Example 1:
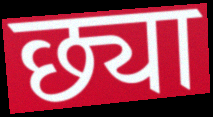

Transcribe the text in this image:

छ्या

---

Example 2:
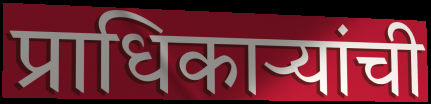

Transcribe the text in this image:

प्राधिकाऱ्यांची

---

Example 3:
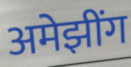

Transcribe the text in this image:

अमेझींग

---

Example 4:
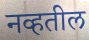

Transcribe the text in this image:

नव्हतील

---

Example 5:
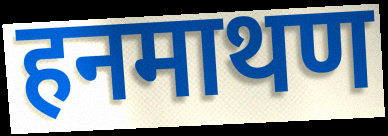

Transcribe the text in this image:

हनमाथण